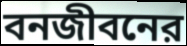
বনজীবনের